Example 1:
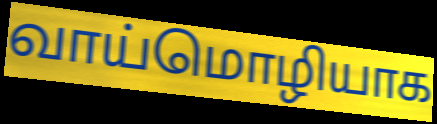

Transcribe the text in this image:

வாய்மொழியாக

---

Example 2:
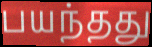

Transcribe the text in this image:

பயந்தது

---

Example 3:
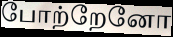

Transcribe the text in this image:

போற்றேனோ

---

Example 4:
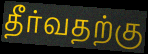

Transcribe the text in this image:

தீர்வதற்கு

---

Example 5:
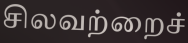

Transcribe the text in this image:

சிலவற்றைச்